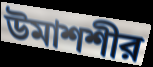
উমাশশীর